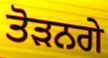
ਤੋੜਨਗੇ